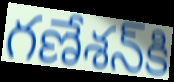
గణేశన్‍కి